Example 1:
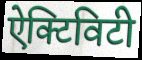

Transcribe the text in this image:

ऐक्टिविटी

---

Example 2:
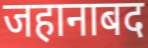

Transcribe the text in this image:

जहानाबद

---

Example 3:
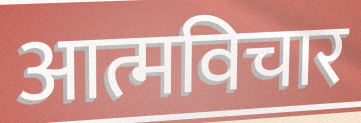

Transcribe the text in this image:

आत्मविचार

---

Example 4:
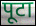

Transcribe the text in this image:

पूटा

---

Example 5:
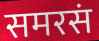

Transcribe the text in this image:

समरसं